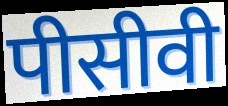
पीसीवी